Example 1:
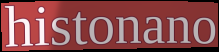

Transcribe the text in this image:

histonano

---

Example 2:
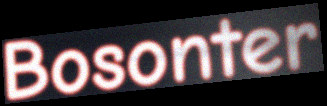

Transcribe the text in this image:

Bosonter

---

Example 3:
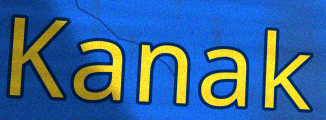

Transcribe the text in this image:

Kanak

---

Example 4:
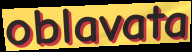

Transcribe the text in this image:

oblavata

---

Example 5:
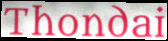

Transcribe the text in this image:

Thondai